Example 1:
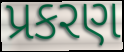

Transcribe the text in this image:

પ્રકરણ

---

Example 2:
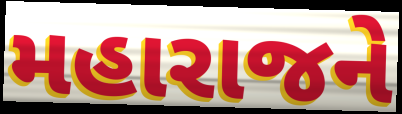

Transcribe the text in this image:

મહારાજને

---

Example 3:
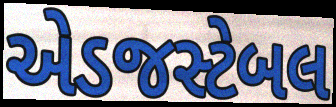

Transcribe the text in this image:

એડજસ્ટેબલ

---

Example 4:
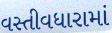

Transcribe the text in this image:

વસ્તીવધારામાં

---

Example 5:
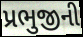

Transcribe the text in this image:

પ્રભુજીની